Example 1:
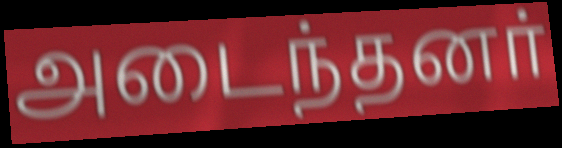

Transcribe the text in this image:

அடைந்தனர்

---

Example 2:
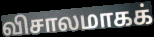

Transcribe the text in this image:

விசாலமாகக்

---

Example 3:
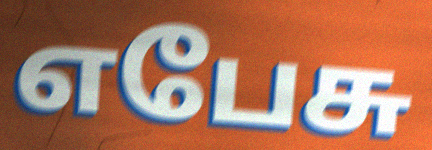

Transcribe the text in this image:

எபேசு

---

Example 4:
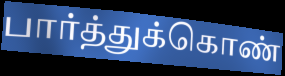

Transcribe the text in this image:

பார்த்துக்கொண்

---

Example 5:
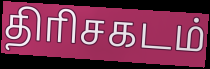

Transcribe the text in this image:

திரிசகடம்